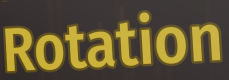
Rotation